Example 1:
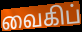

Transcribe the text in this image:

வைகிப்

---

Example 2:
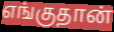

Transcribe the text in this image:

எங்குதான்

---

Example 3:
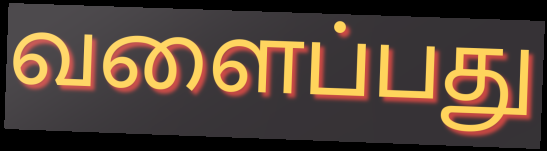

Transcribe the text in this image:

வளைப்பது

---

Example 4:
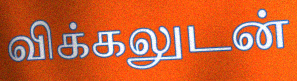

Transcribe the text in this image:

விக்கலுடன்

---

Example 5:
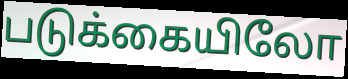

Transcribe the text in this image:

படுக்கையிலோ